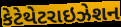
કેટેથેટરાઇઝેશન